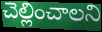
చెల్లించాలని